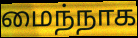
மைந்நாக